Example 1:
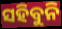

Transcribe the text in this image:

ସହିବୁନି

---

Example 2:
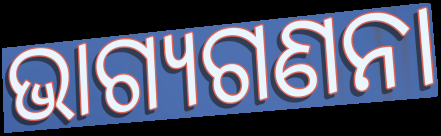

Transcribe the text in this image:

ଭାଗ୍ୟଗଣନା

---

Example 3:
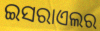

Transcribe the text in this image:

ଇସରାଏଲର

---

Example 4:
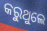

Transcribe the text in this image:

କରୁଥୁଲେ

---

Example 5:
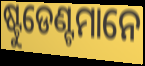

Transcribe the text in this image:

ଷ୍ଟୁଡେଣ୍ଟମାନେ